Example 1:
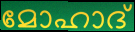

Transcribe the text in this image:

മോഹാദ്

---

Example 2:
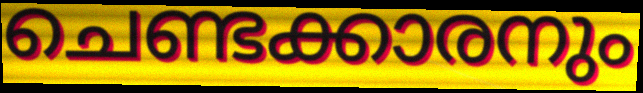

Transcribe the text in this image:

ചെണ്ടക്കാരനും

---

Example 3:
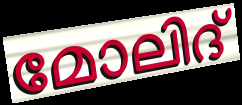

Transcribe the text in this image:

മോലിദ്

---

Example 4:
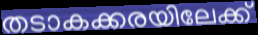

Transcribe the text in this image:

തടാകക്കരയിലേക്ക്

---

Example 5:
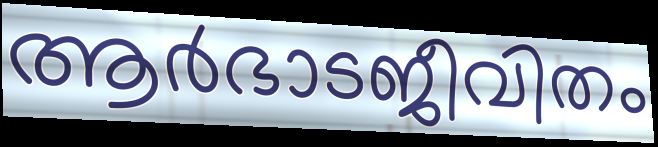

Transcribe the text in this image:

ആർഭാടജീവിതം